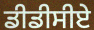
ਡੀਡੀਸੀਏ